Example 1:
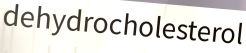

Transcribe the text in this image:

dehydrocholesterol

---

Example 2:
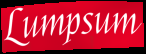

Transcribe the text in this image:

Lumpsum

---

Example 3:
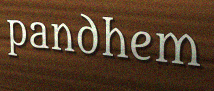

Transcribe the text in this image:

pandhem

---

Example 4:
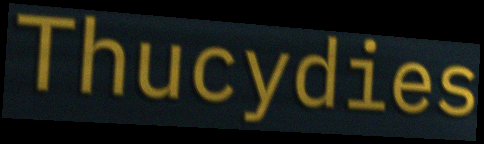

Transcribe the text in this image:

Thucydies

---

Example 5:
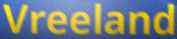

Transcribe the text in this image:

Vreeland